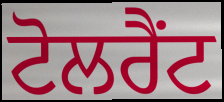
ਟੋਲਰੈਂਟ